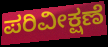
ಪರಿವೀಕ್ಷಣೆ